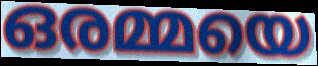
ഒരമ്മയെ